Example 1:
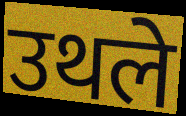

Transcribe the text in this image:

उथले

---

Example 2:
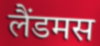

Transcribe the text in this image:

लैंडमस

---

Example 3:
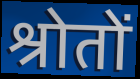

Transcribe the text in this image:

श्रोतों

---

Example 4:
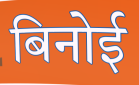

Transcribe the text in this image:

बिनोई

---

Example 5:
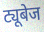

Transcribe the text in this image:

ट्यूबेज